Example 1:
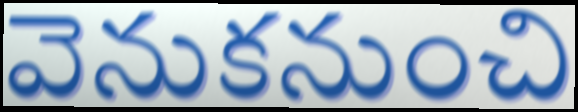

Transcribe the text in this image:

వెనుకనుంచి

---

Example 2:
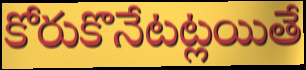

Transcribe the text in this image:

కోరుకొనేటట్లయితే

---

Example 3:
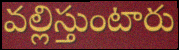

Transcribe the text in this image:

వల్లిస్తుంటారు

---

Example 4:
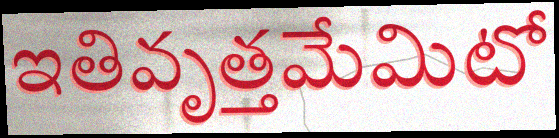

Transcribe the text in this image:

ఇతివృత్తమేమిటో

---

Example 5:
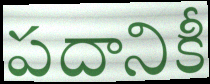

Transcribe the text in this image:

పదానికీ